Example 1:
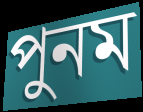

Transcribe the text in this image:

পুনম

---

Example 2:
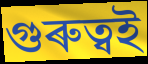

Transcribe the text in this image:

গুৰুত্বই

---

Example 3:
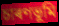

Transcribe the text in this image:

চাৰণভূমি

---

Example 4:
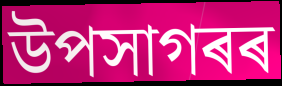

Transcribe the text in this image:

উপসাগৰৰ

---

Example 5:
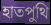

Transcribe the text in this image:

হাতপুথি